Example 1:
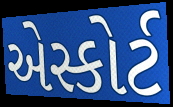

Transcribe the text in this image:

એસ્કોર્ટ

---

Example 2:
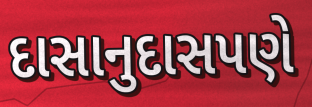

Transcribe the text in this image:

દાસાનુદાસપણે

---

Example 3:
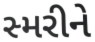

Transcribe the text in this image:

સ્મરીને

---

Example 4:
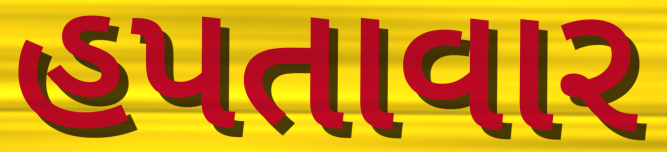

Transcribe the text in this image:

હપતાવાર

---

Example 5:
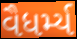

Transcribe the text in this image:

વૈધર્મ્ય